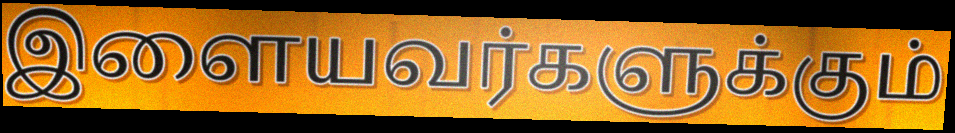
இளையவர்களுக்கும்